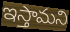
ఇస్తామని